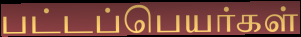
பட்டப்பெயர்கள்